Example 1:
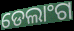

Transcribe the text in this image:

ଡେଲାଂଗ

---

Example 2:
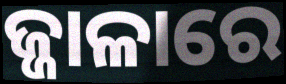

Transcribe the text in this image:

ଜ୍ଜାଳାରେ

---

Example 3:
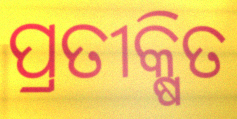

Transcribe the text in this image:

ପ୍ରତୀକ୍ଷିତ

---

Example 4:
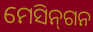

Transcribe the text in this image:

ମେସିନ୍‌ଗନ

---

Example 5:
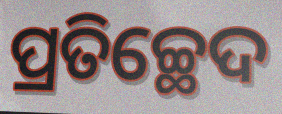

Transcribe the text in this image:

ପ୍ରତିଚ୍ଛେଦ